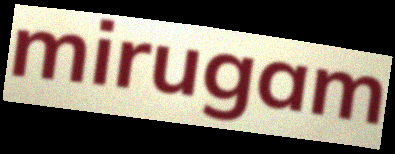
mirugam